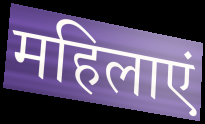
महिलाएं